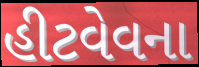
હીટવેવના